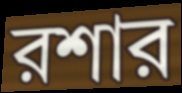
রশার